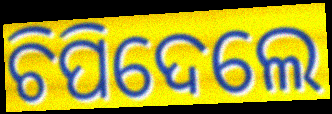
ଚିପିଦେଲେ